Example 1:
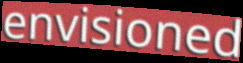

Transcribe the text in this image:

envisioned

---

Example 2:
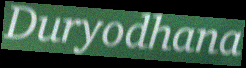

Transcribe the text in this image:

Duryodhana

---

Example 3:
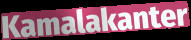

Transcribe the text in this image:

Kamalakanter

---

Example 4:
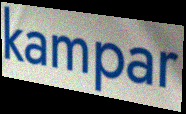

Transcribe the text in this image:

kampar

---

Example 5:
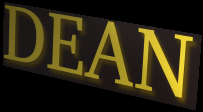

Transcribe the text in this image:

DEAN